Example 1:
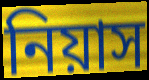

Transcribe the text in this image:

নিয়াস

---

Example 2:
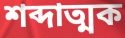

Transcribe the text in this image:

শব্দাত্মক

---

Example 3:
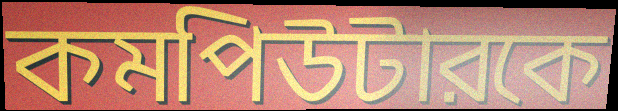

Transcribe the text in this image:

কমপিউটারকে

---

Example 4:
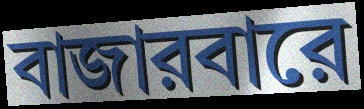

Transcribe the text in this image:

বাজারবারে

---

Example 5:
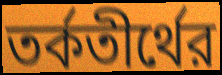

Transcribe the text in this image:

তর্কতীর্থের